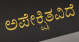
ಅಪೇಕ್ಷಿತವಿದೆ